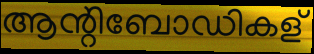
ആന്റിബോഡികള്